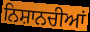
ਨਿਸ਼ਾਨਚੀਆਂ